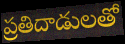
ప్రతిదాడులతో